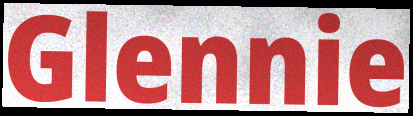
Glennie